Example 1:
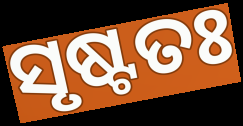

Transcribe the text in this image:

ସୃଷ୍ଟତଃ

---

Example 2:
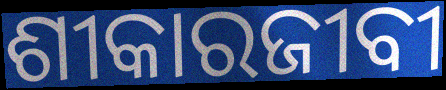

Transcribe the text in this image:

ଶୀକାରଜୀବୀ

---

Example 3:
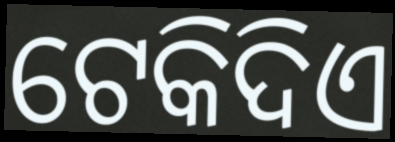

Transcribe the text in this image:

ଟେକିଦିଏ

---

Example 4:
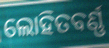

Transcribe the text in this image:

ଲୋହିତବର୍ଣ୍ଣ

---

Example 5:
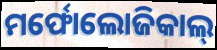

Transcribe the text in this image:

ମର୍ଫୋଲୋଜିକାଲ୍